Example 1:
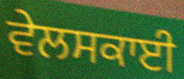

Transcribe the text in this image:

ਵੇਲਸਕਾਈ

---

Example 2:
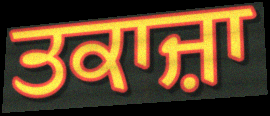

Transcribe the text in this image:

ਤਕਾਜ਼ਾ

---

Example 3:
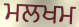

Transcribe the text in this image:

ਮਲਖਮ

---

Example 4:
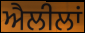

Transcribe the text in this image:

ਐਲੀਲਾਂ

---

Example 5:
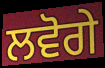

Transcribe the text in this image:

ਲਵੋਗੇ